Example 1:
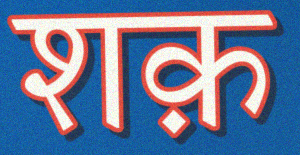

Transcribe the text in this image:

शक़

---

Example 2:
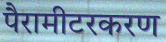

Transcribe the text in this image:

पैरामीटरकरण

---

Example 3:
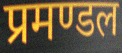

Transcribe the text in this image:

प्रमण्डल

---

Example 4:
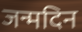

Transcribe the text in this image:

जन्मदिन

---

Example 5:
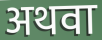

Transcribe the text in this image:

अथवा